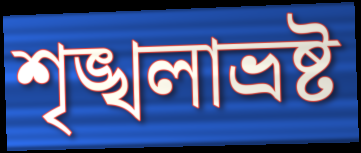
শৃঙ্খলাভ্রষ্ট